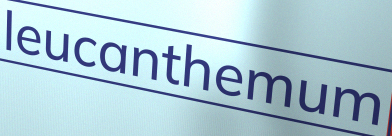
leucanthemum